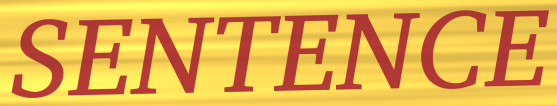
SENTENCE